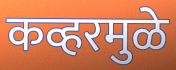
कव्हरमुळे